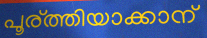
പൂര്ത്തിയാക്കാന്